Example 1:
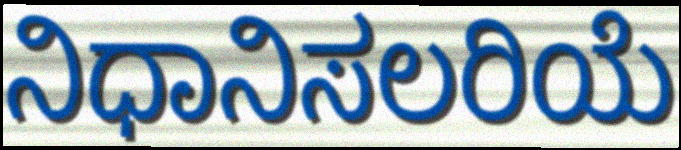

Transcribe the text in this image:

ನಿಧಾನಿಸಲರಿಯೆ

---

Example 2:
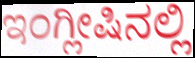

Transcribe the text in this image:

ಇಂಗ್ಲೀಷಿನಲ್ಲಿ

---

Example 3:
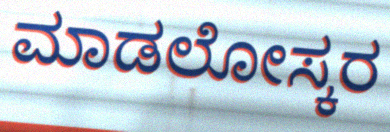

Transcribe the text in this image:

ಮಾಡಲೋಸ್ಕರ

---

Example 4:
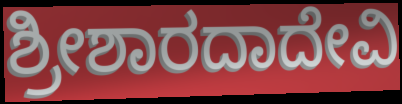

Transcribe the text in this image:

ಶ್ರೀಶಾರದಾದೇವಿ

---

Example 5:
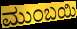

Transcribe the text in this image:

ಮುಂಬಯಿ